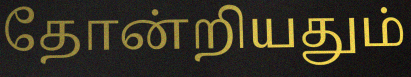
தோன்றியதும்